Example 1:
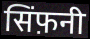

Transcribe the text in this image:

सिंफ़नी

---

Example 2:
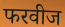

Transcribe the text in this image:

फरवीज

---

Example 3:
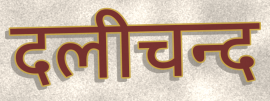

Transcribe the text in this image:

दलीचन्द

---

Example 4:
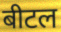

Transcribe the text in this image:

बीटल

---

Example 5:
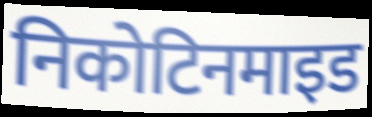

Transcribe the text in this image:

निकोटिनमाइड